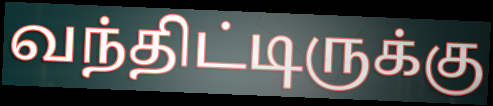
வந்திட்டிருக்கு